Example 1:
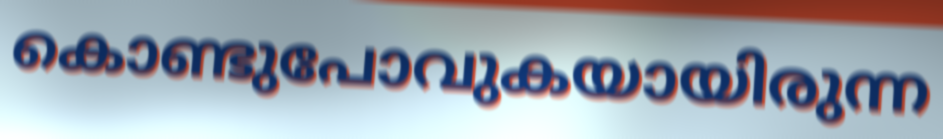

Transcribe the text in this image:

കൊണ്ടുപോവുകയായിരുന്ന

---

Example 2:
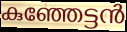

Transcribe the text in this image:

കുഞ്ഞേട്ടൻ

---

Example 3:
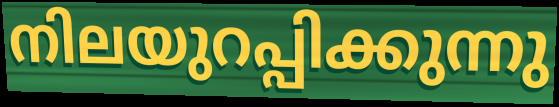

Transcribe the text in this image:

നിലയുറപ്പിക്കുന്നു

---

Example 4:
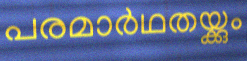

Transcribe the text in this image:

പരമാർഥതയ്ക്കും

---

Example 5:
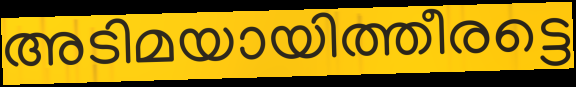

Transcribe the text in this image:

അടിമയായിത്തീരട്ടെ